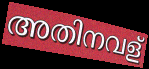
അതിനവള്